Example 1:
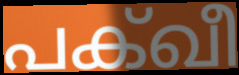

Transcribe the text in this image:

പക്ഖീ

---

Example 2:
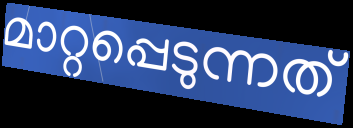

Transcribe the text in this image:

മാറ്റപ്പെടുന്നത്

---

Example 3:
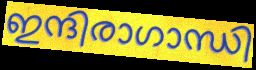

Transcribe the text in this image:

ഇന്ദിരാഗാന്ധി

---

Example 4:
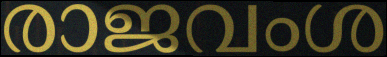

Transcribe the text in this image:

രാജവംശ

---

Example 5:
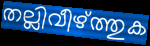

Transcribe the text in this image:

തല്ലിവീഴ്ത്തുക